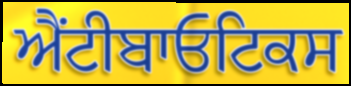
ਐਂਟੀਬਾਓਟਿਕਸ